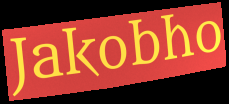
Jakobho